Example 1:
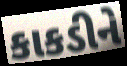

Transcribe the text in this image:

કાકડીને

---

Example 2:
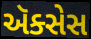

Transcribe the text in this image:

ઍક્સેસ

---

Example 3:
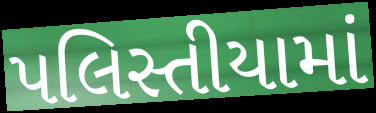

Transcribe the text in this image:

પલિસ્તીયામાં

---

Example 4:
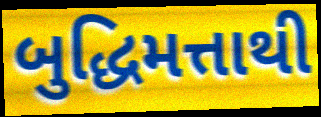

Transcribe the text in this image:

બુદ્ધિમત્તાથી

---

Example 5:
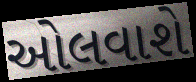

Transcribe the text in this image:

ઓલવાશે